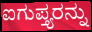
ಐಗುಪ್ತ್ಯರನ್ನು